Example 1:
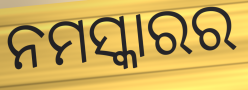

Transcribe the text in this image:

ନମସ୍କାରର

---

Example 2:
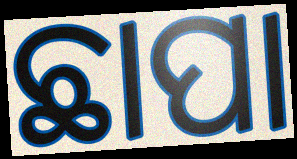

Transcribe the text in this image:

ଛାପା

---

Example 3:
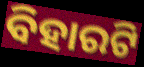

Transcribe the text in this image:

ବିହାରଟି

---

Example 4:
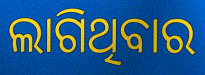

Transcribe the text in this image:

ଲାଗିଥିବାର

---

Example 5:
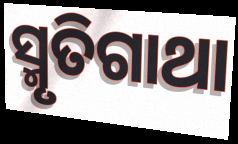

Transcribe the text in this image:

ସ୍ମୃତିଗାଥା